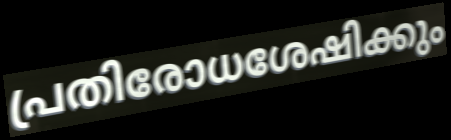
പ്രതിരോധശേഷിക്കും